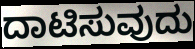
ದಾಟಿಸುವುದು